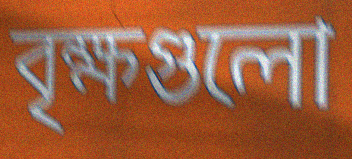
বৃক্ষগুলো